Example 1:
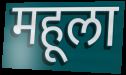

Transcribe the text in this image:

महूला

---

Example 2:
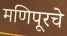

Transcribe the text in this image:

मणिपूरचे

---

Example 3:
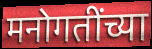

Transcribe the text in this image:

मनोगतींच्या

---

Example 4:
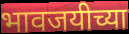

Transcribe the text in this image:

भावजयीच्या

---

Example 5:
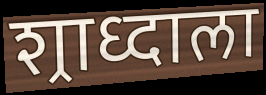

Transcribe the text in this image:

श्राध्दाला